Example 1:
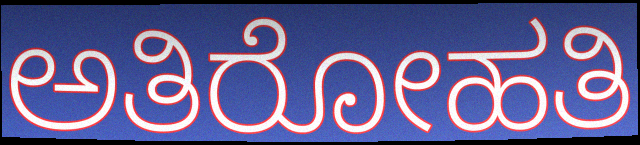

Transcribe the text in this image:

ಅತಿರೋಹತಿ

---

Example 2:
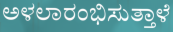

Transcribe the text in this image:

ಅಳಲಾರಂಭಿಸುತ್ತಾಳೆ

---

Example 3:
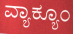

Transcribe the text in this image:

ವ್ಯಾಕ್ಯೂಂ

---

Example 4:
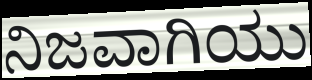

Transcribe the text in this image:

ನಿಜವಾಗಿಯು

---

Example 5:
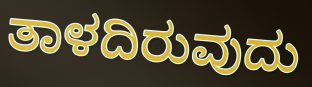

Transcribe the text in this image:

ತಾಳದಿರುವುದು